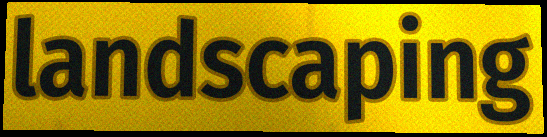
landscaping